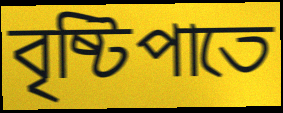
বৃষ্টিপাতে